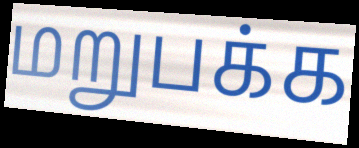
மறுபக்க